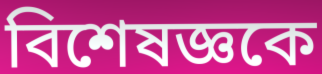
বিশেষজ্ঞকে